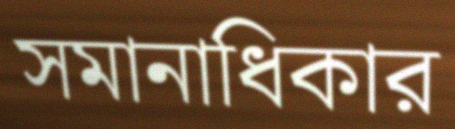
সমানাধিকার